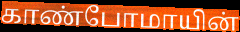
காண்போமாயின்